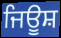
ਜਿਊਸ਼